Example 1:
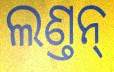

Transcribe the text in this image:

ଲଣ୍ତନ୍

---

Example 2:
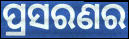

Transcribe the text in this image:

ପ୍ରସରଣର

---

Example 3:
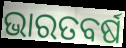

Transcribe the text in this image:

ଭାରତବର୍ଷ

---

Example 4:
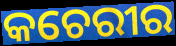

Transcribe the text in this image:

କଚେରୀର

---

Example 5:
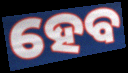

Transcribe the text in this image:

ହେବ